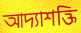
আদ্যাশক্তি